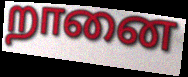
றானை